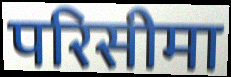
परिसीमा